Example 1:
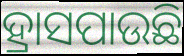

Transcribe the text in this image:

ହ୍ରାସପାଉଛି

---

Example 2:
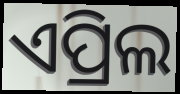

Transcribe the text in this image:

ଏପ୍ରିଲ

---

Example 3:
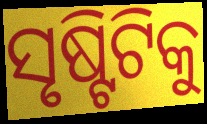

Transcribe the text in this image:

ସୃଷ୍ଟିଟିକୁ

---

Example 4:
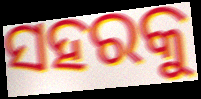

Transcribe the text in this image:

ସହରକୁ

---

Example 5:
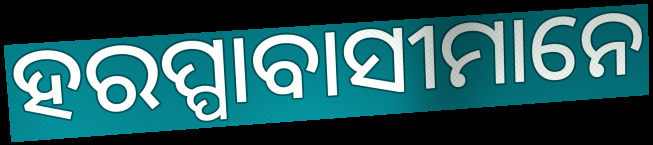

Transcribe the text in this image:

ହରପ୍ପାବାସୀମାନେ